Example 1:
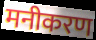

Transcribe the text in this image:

मनीकरण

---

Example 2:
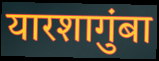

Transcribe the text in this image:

यारशागुंबा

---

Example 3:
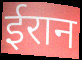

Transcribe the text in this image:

ईरान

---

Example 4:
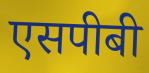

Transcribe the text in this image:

एसपीबी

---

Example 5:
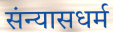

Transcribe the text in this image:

संन्यासधर्म